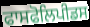
ਫਾਸਫੋਲਿਪੀਡਸ